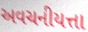
અવચનીયત્તા